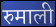
रुमाली